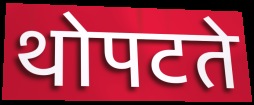
थोपटते